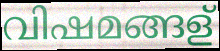
വിഷമങ്ങള്